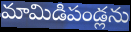
మామిడిపండ్లను